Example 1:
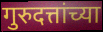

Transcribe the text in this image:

गुरुदत्तांच्या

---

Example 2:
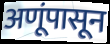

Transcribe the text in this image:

अणूंपासून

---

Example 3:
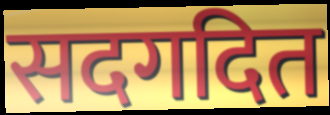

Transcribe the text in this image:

सदगदित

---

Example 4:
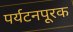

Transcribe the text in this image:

पर्यटनपूरक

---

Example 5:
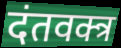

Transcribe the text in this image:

दंतवक्त्र